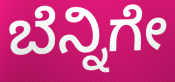
ಬೆನ್ನಿಗೇ